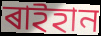
ৰাইহান